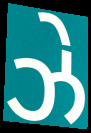
ઝે